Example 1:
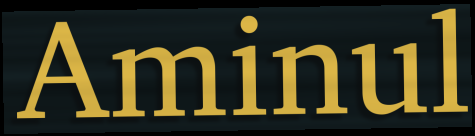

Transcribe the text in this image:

Aminul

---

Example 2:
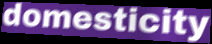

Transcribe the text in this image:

domesticity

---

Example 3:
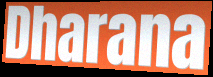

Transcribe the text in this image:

Dharana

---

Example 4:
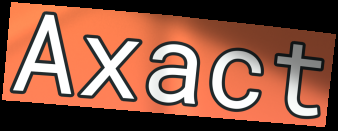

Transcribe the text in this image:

Axact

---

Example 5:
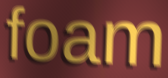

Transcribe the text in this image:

foam